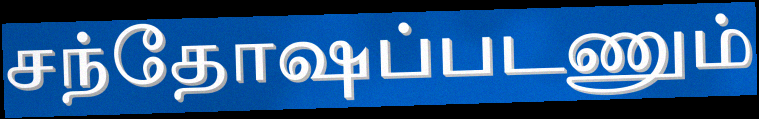
சந்தோஷப்படணும்